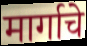
मार्गाचे